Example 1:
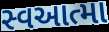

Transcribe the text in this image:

સ્વઆત્મા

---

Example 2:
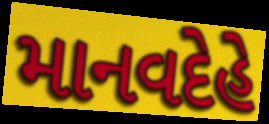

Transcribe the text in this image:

માનવદેહે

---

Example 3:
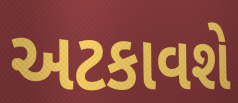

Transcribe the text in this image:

અટકાવશે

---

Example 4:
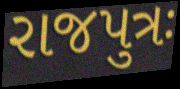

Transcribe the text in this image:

રાજપુત્રઃ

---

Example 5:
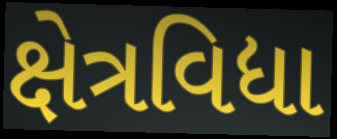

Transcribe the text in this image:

ક્ષેત્રવિદ્યા